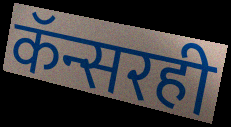
कॅन्सरही